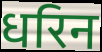
धरिन